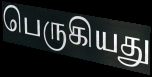
பெருகியது